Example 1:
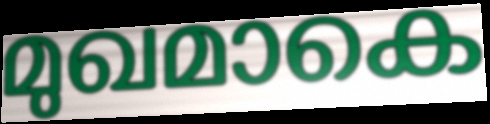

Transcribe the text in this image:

മുഖമാകെ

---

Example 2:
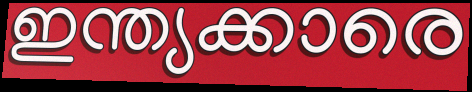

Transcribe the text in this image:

ഇന്ത്യക്കാരെ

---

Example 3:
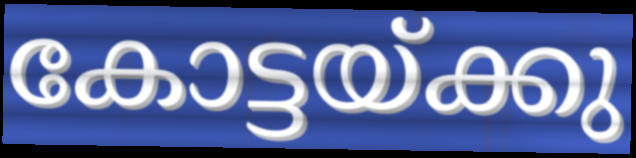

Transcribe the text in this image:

കോട്ടയ്ക്കു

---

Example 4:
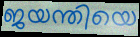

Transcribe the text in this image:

ജയന്തിയെ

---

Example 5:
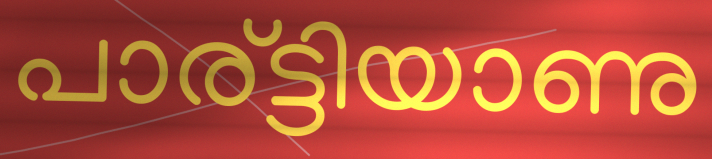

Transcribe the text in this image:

പാര്ട്ടിയാണു